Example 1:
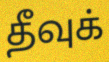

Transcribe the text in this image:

தீவுக்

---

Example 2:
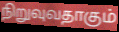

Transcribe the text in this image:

நிறுவுவதாகும்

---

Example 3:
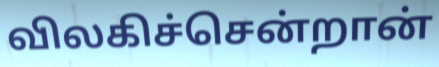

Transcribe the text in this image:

விலகிச்சென்றான்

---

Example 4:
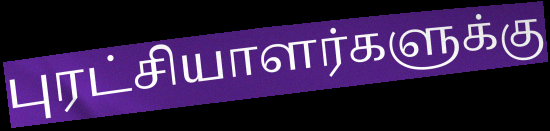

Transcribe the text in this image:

புரட்சியாளர்களுக்கு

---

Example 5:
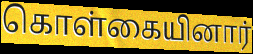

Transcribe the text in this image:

கொள்கையினார்